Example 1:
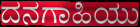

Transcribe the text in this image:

ದನಗಾಹಿಯು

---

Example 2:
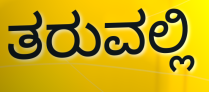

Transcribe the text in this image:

ತರುವಲ್ಲಿ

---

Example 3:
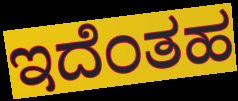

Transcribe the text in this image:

ಇದೆಂತಹ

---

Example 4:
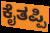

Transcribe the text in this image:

ಕೈತಪ್ಪಿ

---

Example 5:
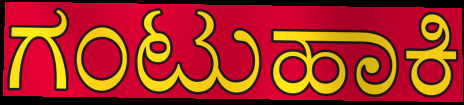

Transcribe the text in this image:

ಗಂಟುಹಾಕಿ